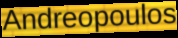
Andreopoulos